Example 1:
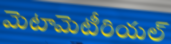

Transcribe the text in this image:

మెటామెటీరియల్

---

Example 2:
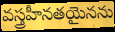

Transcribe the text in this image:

వస్త్రహీనతయైనను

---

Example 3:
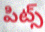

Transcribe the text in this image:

పిట్స్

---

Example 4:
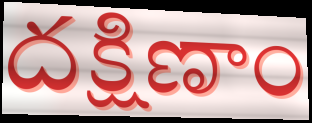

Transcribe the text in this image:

దక్షిణాం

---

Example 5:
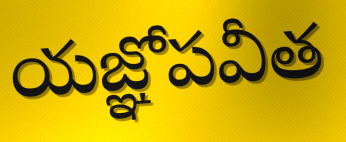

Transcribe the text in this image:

యజ్ఞోపవీత